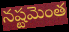
నష్టమెంత